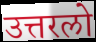
उत्तरलो